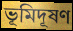
ভূমিদূষণ